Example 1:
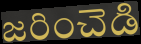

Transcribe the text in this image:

జరించెడి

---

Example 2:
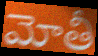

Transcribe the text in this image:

మోతీ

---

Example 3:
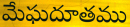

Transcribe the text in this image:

మేఘదూతము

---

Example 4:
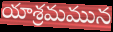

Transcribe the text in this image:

యాశ్రమమున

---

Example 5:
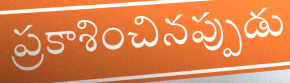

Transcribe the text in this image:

ప్రకాశించినప్పుడు